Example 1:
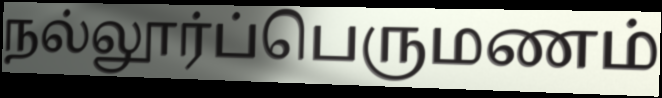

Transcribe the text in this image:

நல்லூர்ப்பெருமணம்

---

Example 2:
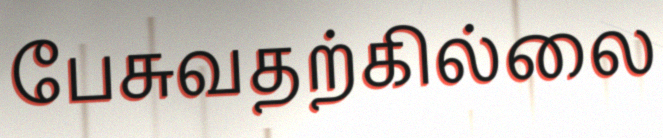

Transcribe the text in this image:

பேசுவதற்கில்லை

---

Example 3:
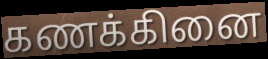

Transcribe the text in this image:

கணக்கினை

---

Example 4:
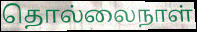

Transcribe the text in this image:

தொல்லைநாள்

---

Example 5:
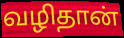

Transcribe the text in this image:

வழிதான்